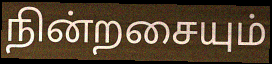
நின்றசையும்